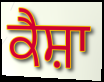
ਕੈਸ਼ਾ